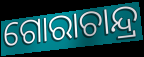
ଗୋରାଚାନ୍ଦ୍ର